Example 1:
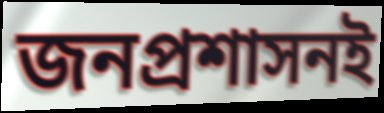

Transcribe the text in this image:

জনপ্রশাসনই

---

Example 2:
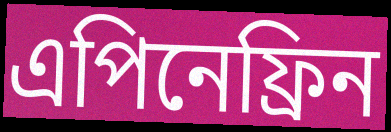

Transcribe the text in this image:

এপিনেফ্রিন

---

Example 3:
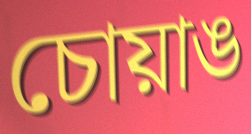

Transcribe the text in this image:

চোয়াঙ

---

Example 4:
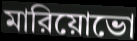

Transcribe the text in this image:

মারিয়োভো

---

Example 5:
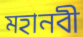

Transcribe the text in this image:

মহানবী